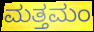
ಮತ್ತಮಂ